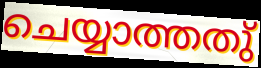
ചെയ്യാത്തതു്